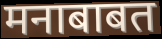
मनाबाबत